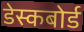
डेस्कबोर्ड